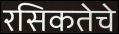
रसिकतेचे